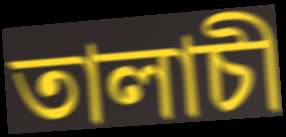
তালাচী